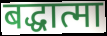
बद्धात्मा